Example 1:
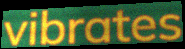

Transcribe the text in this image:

vibrates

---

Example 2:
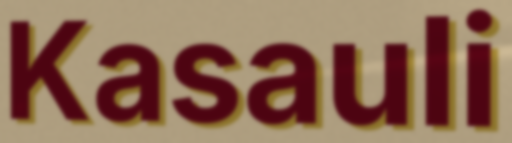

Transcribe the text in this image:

Kasauli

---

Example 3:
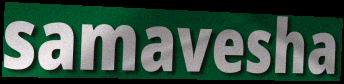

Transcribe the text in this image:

samavesha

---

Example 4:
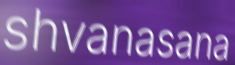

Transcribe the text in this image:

shvanasana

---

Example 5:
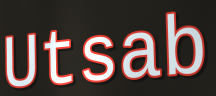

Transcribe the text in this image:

Utsab